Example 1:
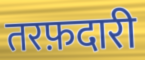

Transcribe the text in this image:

तरफ़दारी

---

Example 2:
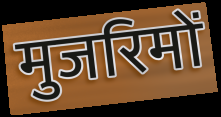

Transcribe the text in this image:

मुजरिमों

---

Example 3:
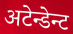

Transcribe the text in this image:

अटेन्डेन्ट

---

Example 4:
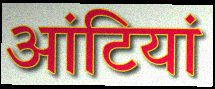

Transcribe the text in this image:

आंटियां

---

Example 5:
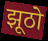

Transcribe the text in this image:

झूठो